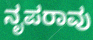
ನೃಪರಾವು